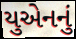
યુએનનું